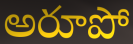
అరూపో